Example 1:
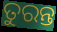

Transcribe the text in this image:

ତୁରନ୍ତ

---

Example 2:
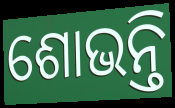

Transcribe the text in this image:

ଶୋଭନ୍ତି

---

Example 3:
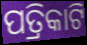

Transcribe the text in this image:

ପତ୍ରିକାଟି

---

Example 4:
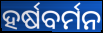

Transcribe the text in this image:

ହର୍ଷବର୍ମନ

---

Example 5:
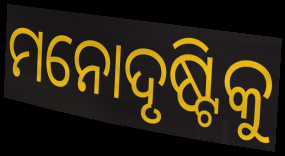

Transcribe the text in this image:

ମନୋଦୃଷ୍ଟିକୁ